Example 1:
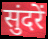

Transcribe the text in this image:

सुंदरें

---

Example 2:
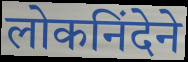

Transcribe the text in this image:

लोकनिंदेने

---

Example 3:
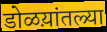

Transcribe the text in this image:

डोळय़ांतल्या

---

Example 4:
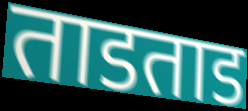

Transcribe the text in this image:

ताडताड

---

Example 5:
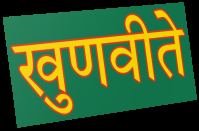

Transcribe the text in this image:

खुणवीते